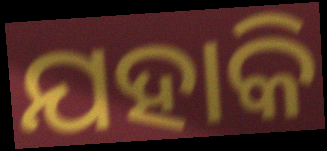
ଯହାକି